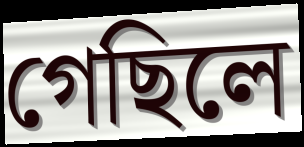
গেছিলে